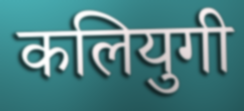
कलियुगी